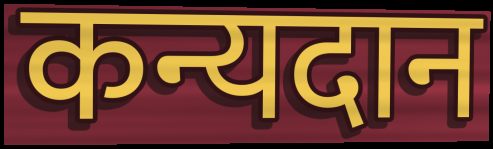
कन्यदान